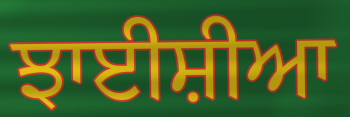
ਝਾਈਸ਼ੀਆ